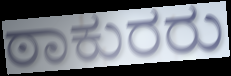
ಠಾಕುರರು